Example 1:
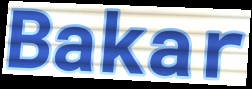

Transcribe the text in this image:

Bakar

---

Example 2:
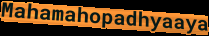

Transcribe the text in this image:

Mahamahopadhyaaya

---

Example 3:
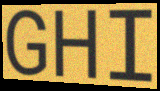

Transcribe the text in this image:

GHI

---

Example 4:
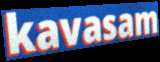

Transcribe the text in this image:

kavasam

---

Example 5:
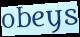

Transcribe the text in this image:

obeys